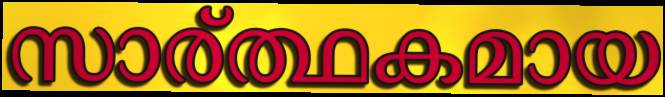
സാര്ത്ഥകമായ